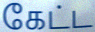
கேட்ட